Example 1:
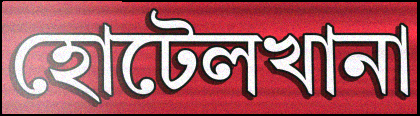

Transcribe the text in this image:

হোটেলখানা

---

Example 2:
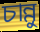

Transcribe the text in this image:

চান্নু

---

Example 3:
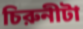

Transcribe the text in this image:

চিরুনীটা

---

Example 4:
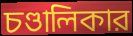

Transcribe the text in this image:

চণ্ডালিকার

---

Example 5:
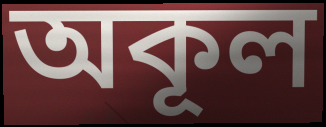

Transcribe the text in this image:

অকূল